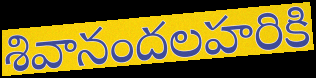
శివానందలహరికి